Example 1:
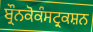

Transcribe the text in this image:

ਬ੍ਰੌਨਕੋਕੰਸਟ੍ਰਕਸ਼ਨ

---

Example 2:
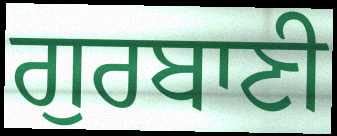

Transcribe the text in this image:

ਗੁਰਬਾਣੀ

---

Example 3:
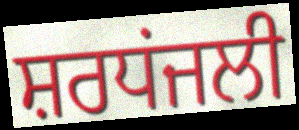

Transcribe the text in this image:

ਸ਼ਰਧਂਜਲੀ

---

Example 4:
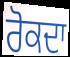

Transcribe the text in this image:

ਰੋਕਦਾ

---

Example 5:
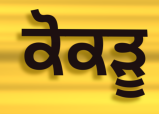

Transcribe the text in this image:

ਕੋਕੜੂ